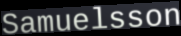
Samuelsson